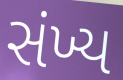
સંખ્ય